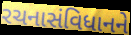
રચનાસંવિધાનને